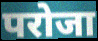
परोजा